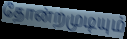
தோன்றமுடியும்